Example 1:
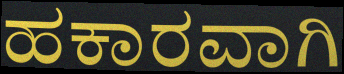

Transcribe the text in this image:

ಹಕಾರವಾಗಿ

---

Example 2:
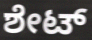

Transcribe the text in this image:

ಶೇಟ್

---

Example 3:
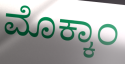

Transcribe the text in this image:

ಮೊಕ್ಕಾಂ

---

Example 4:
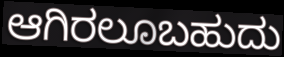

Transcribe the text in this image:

ಆಗಿರಲೂಬಹುದು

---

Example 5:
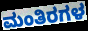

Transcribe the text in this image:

ಮಂತಿರಗಳ